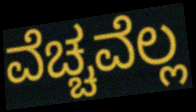
ವೆಚ್ಚವೆಲ್ಲ